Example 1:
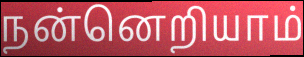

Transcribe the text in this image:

நன்னெறியாம்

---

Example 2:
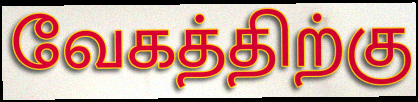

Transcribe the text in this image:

வேகத்திற்கு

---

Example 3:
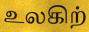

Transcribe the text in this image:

உலகிற்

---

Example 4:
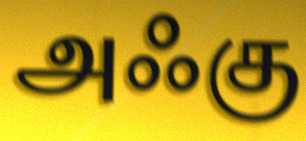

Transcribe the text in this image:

அஃகு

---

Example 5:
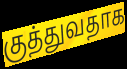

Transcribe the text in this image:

குத்துவதாக